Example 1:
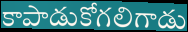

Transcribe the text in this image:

కాపాడుకోగలిగాడు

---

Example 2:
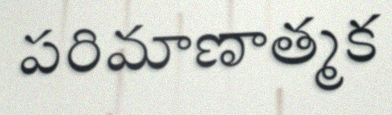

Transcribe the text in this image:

పరిమాణాత్మక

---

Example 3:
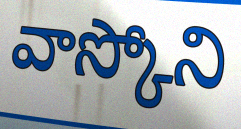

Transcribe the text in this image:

వాస్కోని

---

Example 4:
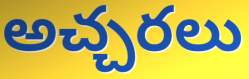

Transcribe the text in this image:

అచ్చరలు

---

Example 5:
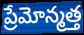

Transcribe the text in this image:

ప్రేమోన్మత్త